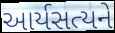
આર્યસત્યને